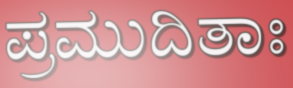
ಪ್ರಮುದಿತಾಃ